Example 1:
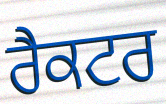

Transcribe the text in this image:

ਰੈਕਟਰ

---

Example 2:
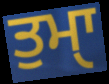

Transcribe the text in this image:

ਤੁਮਾੑ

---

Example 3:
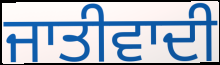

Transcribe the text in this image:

ਜਾਤੀਵਾਦੀ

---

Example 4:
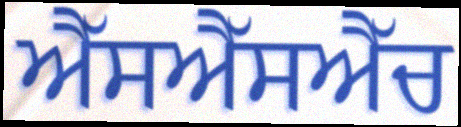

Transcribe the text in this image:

ਐੱਸਐੱਸਐੱਚ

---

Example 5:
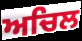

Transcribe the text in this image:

ਅਚਿਲ